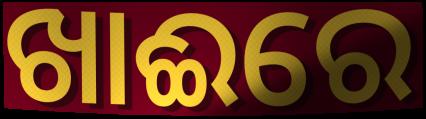
ଖାଈରେ